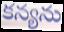
కన్యను